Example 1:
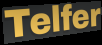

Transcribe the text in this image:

Telfer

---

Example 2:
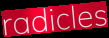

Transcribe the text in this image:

radicles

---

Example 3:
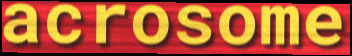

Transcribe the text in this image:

acrosome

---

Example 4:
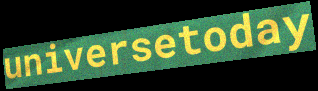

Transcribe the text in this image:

universetoday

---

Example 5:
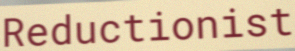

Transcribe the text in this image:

Reductionist